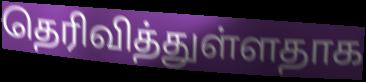
தெரிவித்துள்ளதாக